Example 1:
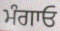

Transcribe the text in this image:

ਮੰਗਾਓ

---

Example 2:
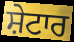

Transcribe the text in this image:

ਸ਼ੇਟਾਰ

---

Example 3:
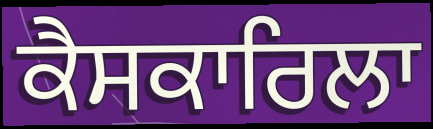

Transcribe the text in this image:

ਕੈਸਕਾਰਿਲਾ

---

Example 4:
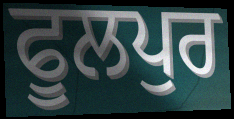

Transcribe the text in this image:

ਫੂਲਪੁਰ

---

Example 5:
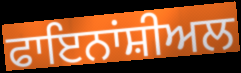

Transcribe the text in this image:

ਫਾਇਨਾਂਸ਼ੀਅਲ